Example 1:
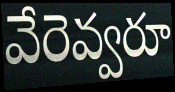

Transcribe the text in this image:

వేరెవ్వరూ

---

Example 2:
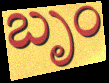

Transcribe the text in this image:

బృం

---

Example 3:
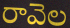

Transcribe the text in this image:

రావెల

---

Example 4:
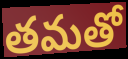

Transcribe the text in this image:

తమతో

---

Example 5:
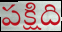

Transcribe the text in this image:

పక్షిది